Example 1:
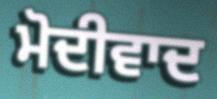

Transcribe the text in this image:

ਮੋਦੀਵਾਦ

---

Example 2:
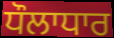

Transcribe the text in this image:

ਧੌਲਾਧਾਰ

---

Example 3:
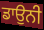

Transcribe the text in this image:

ਡਾਉਨੀ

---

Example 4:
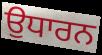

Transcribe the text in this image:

ਉਧਾਰਨ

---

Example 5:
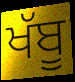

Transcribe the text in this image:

ਖੱਬੂ